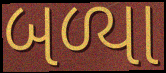
બળ્યા